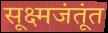
सूक्ष्मजंतूंत